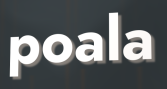
poala